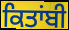
ਕਿਤਾਂਬੀ